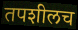
तपशीलच